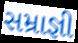
સમ્રાજ્ઞી